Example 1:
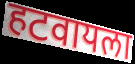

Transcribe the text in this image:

हटवायला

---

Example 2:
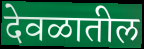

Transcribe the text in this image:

देवळातील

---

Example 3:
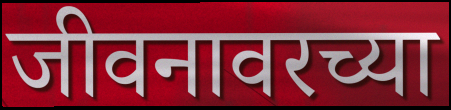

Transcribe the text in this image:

जीवनावरच्या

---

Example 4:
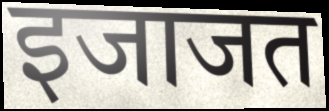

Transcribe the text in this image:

इजाजत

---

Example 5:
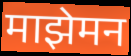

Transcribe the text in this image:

माझेमन